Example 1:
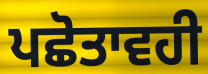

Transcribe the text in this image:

ਪਛੋਤਾਵਹੀ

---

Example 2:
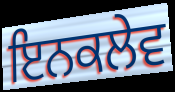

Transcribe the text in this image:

ਇਨਕਲੇਵ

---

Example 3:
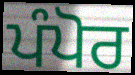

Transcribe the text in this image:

ਪੰਪੋਰ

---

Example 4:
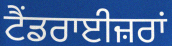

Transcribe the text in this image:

ਟੈਂਡਰਾਈਜ਼ਰਾਂ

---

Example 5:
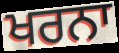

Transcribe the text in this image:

ਖਰਨਾ